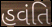
હવંતિ